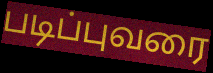
படிப்புவரை